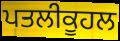
ਪਤਲੀਕੂਹਲ